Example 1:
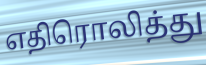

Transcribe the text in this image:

எதிரொலித்து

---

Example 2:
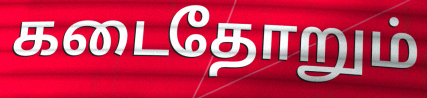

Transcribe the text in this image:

கடைதோறும்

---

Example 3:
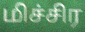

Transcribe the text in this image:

மிச்சிர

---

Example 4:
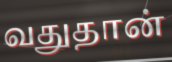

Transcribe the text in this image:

வதுதான்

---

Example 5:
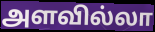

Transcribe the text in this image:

அளவில்லா